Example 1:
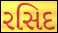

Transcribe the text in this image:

રસિદ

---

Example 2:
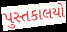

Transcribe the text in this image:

પુસ્તકાલયો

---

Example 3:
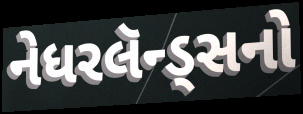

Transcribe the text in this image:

નેધરલૅન્ડ્સનો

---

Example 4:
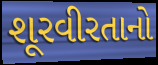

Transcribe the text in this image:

શૂરવીરતાનો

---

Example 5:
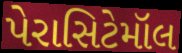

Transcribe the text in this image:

પેરાસિટેમૉલ